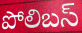
పోలిబస్